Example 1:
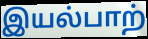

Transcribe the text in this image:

இயல்பாற்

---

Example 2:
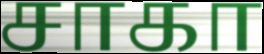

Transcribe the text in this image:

சாகா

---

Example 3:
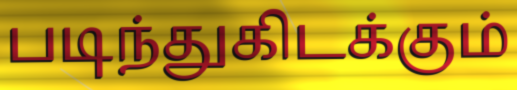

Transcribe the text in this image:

படிந்துகிடக்கும்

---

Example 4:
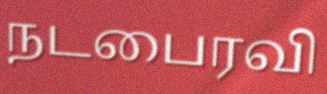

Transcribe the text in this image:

நடபைரவி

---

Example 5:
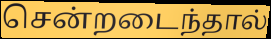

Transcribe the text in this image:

சென்றடைந்தால்